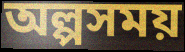
অল্পসময়